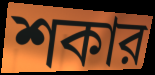
শকার